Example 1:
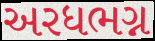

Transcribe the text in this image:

અરધભગ્ન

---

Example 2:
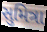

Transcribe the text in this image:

સુમિત્રા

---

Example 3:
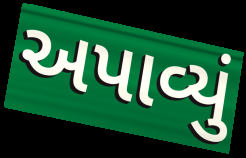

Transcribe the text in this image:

અપાવ્યું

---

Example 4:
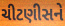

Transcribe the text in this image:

ચીટણીસને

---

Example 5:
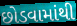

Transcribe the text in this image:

છોડવામાંથી